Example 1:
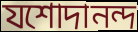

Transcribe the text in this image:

যশোদানন্দ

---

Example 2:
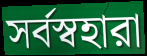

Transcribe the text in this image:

সর্বস্বহারা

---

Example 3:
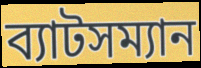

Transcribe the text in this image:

ব্যাটসম্যান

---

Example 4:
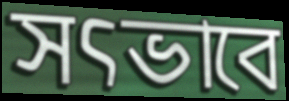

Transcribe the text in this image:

সৎভাবে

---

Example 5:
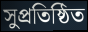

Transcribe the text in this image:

সুপ্রতিষ্ঠিত